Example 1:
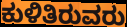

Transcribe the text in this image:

ಕುಳಿತಿರುವರು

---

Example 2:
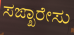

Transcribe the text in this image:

ಸಙ್ಖಾರೇಸು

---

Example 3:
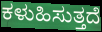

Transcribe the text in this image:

ಕಳುಹಿಸುತ್ತದೆ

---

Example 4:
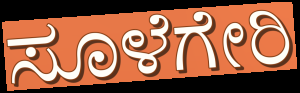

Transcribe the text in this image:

ಸೂಳೆಗೇರಿ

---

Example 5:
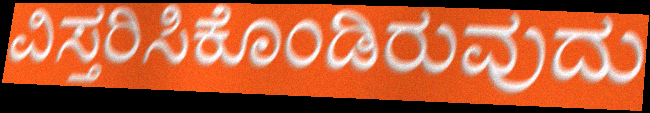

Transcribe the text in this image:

ವಿಸ್ತರಿಸಿಕೊಂಡಿರುವುದು